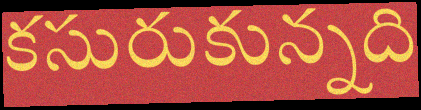
కసురుకున్నది